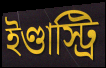
ইণ্ডাস্ট্রি